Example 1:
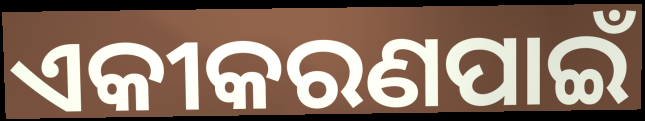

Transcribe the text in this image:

ଏକୀକରଣପାଇଁ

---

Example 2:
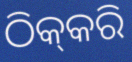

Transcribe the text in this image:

ଠିକ୍‍କରି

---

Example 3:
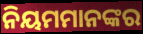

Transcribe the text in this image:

ନିୟମମାନଙ୍କର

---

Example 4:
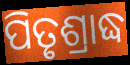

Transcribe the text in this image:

ପିତୃଶ୍ରାଦ୍ଧ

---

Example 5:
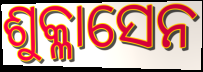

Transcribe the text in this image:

ଶୁକ୍ଳାସେନ